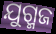
ଯୁଗ୍ମଜ